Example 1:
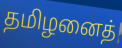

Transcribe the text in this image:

தமிழனைத்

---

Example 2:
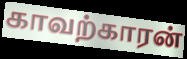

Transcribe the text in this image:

காவற்காரன்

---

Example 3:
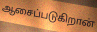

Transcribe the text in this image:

ஆசைப்படுகிறான்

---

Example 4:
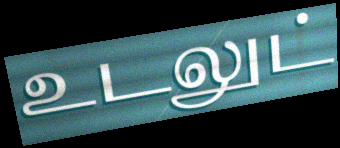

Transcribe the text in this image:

உடலுட்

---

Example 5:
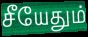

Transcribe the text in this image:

சீயேதும்